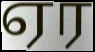
ஏர